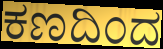
ಕಣದಿಂದ